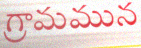
గ్రామమున